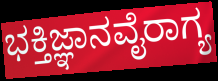
ಭಕ್ತಿಜ್ಞಾನವೈರಾಗ್ಯ